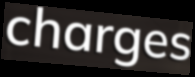
charges